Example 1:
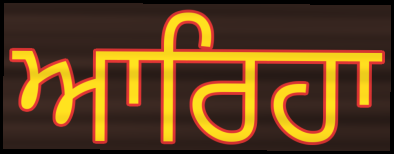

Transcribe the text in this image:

ਆਰਿਹਾ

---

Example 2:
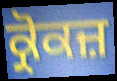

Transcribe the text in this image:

ਕ੍ਰੋਕਜ਼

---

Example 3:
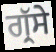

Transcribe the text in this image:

ਗ੍ਰੱਸੇ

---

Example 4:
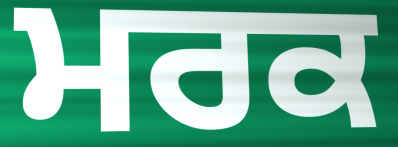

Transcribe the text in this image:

ਮਰਕ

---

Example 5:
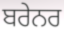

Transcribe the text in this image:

ਬਰੇਨਰ